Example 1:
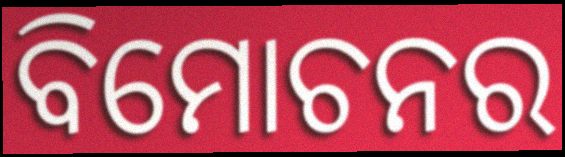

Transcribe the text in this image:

ବିମୋଚନର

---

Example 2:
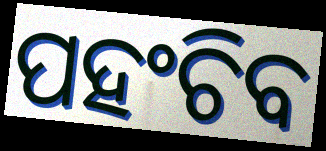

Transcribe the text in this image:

ପହଂଚିବ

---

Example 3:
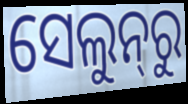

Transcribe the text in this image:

ସେଲୁନ୍‌ରୁ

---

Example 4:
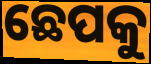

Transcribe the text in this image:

ଛେପକୁ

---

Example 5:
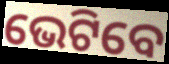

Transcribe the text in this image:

ଭେଟିବେ